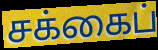
சக்கைப்